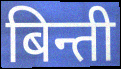
बिन्ती